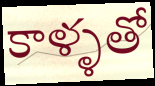
కాళ్ళతో